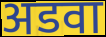
अडवा